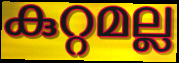
കുറ്റമല്ല